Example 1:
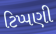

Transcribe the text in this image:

ટિપ્પણી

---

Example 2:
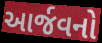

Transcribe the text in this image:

આર્જવનો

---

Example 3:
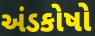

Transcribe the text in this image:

અંડકોષો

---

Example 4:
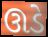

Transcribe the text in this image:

ઊડે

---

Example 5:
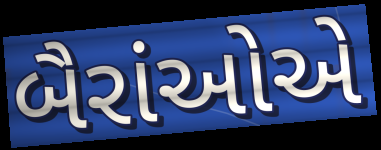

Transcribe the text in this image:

બૈરાંઓએ